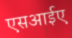
एसआईए